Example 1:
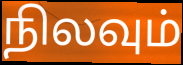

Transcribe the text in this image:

நிலவும்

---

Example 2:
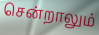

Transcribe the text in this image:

சென்றாலும்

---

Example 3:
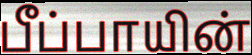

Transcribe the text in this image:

பீப்பாயின்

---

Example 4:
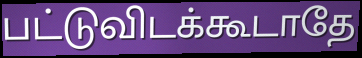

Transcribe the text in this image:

பட்டுவிடக்கூடாதே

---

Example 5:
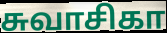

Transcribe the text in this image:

சுவாசிகா